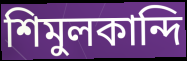
শিমুলকান্দি